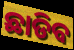
ଛାଡିବ